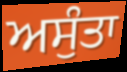
ਅਸੁੰਤਾ